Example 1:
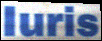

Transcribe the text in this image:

Iuris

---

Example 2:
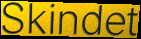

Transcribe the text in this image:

Skindet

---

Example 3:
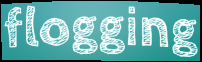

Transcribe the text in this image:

flogging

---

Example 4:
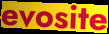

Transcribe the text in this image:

evosite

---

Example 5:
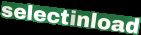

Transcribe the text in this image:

selectinload